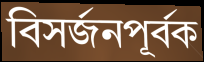
বিসর্জনপূর্বক